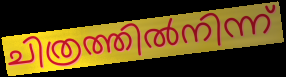
ചിത്രത്തിൽനിന്ന്